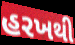
હરખથી